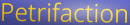
Petrifaction